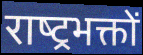
राष्ट्रभक्तों